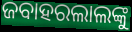
ଜବାହରଲାଲଙ୍କୁ